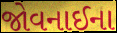
જોવનાઈના